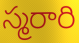
స్మరారి